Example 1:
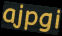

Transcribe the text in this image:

ajpgi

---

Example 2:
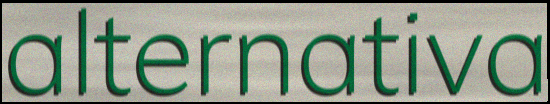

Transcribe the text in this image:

alternativa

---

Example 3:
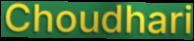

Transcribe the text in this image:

Choudhari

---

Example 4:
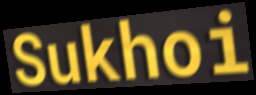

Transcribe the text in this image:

Sukhoi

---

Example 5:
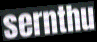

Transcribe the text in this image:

sernthu